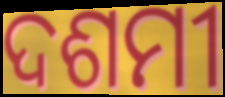
ଦଶମୀ